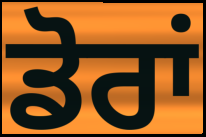
ਡੋਰਾਂ